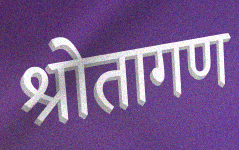
श्रोतागण